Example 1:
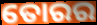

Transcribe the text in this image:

ତୋରର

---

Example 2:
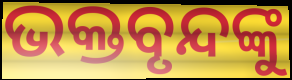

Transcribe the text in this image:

ଭକ୍ତବୃନ୍ଦଙ୍କୁ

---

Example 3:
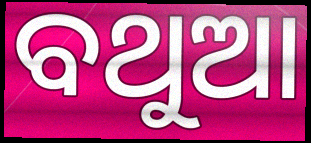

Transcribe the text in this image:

ବଥୁଆ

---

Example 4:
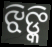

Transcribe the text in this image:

ଝିଙ୍କି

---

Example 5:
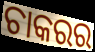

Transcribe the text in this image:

ଚାକରର